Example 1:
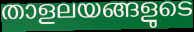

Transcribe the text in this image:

താളലയങ്ങളുടെ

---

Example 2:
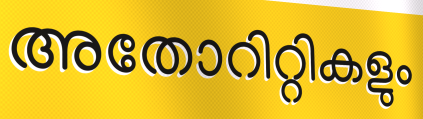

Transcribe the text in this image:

അതോറിറ്റികളും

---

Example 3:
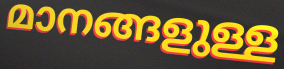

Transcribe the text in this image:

മാനങ്ങളുള്ള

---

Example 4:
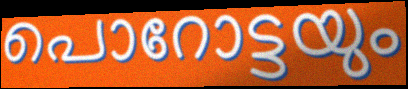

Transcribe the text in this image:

പൊറോട്ടയും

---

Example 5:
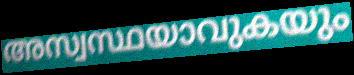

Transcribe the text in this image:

അസ്വസ്ഥയാവുകയും